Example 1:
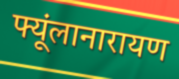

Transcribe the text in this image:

फ्यूंलानारायण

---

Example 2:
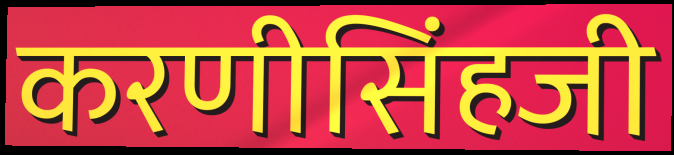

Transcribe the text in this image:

करणीसिंहजी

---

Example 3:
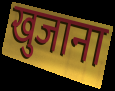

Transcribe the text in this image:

खुजाना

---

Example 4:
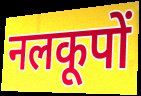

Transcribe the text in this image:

नलकूपों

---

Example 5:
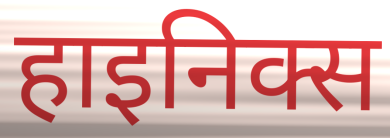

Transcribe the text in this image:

हाइनिक्स